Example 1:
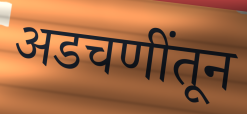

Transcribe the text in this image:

अडचणींतून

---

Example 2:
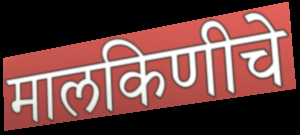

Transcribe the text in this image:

मालकिणीचे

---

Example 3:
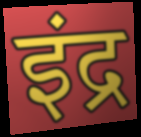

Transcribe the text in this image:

इंद्र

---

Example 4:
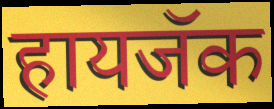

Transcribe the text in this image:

हायजॅक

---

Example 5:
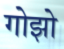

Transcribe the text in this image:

गोझो